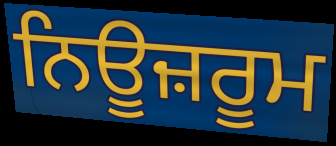
ਨਿਊਜ਼ਰੂਮ